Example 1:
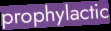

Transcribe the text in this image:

prophylactic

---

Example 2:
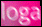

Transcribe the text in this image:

loga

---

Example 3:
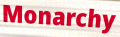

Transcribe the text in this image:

Monarchy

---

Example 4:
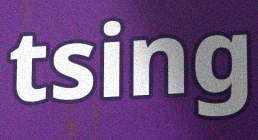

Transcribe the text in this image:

tsing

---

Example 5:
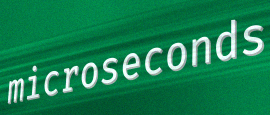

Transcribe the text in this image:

microseconds